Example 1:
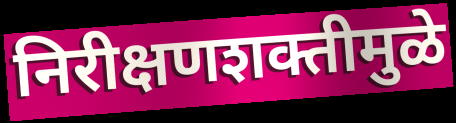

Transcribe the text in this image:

निरीक्षणशक्तीमुळे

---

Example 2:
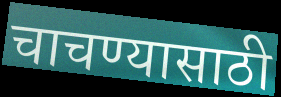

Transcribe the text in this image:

चाचण्यासाठी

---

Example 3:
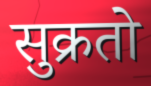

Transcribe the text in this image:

सुक्रतो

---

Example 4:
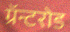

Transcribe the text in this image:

ग्रॅन्टरोड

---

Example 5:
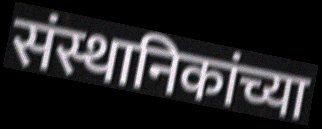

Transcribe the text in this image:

संस्थानिकांच्या